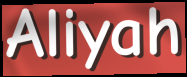
Aliyah